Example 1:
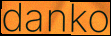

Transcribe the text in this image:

danko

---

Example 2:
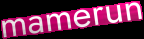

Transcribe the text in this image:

mamerun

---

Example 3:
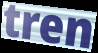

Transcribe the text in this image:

tren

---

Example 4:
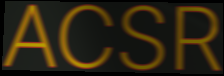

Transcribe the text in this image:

ACSR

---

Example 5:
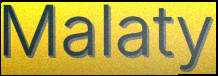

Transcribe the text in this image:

Malaty